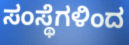
ಸಂಸ್ಥೆಗಳಿಂದ